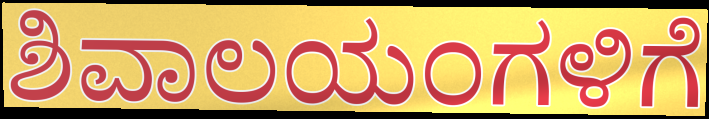
ಶಿವಾಲಯಂಗಳಿಗೆ